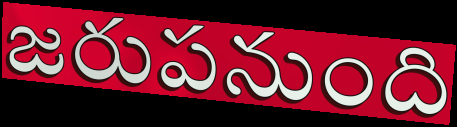
జరుపనుంది